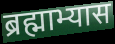
ब्रह्माभ्यास